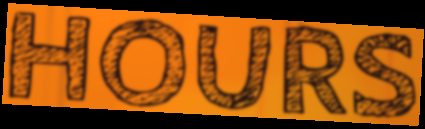
HOURS